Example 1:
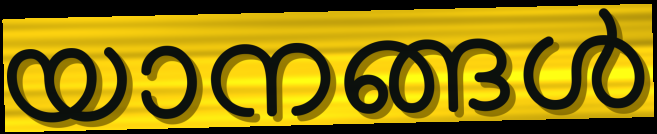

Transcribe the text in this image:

യാനങ്ങൾ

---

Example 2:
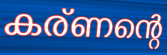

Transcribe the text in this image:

കര്ണന്റെ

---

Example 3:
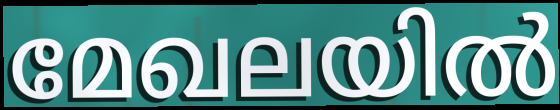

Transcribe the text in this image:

മേഖലയിൽ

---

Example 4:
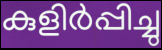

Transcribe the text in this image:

കുളിർപ്പിച്ചു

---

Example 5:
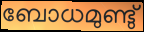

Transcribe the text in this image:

ബോധമുണ്ടു്